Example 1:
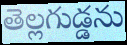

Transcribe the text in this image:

తెల్లగుడ్డను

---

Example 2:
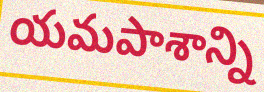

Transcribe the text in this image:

యమపాశాన్ని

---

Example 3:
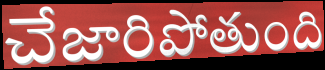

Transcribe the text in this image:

చేజారిపోతుంది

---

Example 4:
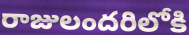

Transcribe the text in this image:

రాజులందరిలోకి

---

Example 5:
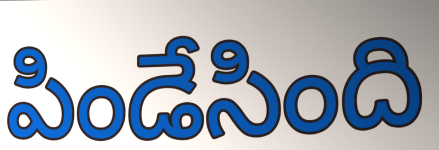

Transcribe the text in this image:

పిండేసింది